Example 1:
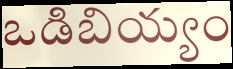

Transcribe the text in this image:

ఒడిబియ్యం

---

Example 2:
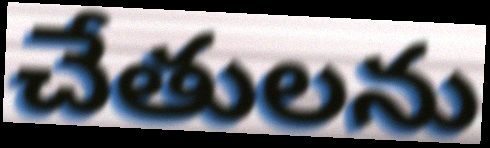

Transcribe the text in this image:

చేతులను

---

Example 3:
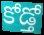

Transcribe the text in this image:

కోడ్తో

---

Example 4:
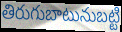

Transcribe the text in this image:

తిరుగుబాటునుబట్టి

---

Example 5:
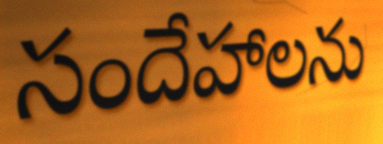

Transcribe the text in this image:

సందేహాలను